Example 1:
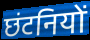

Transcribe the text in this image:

छंटनियों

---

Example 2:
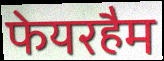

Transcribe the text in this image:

फेयरहैम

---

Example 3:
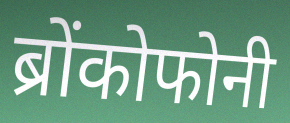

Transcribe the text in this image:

ब्रोंकोफोनी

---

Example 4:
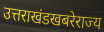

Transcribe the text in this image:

उत्तराखंडखबरेराज्य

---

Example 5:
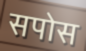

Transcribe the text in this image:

सपोस